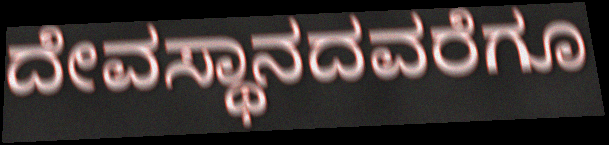
ದೇವಸ್ಥಾನದವರೆಗೂ